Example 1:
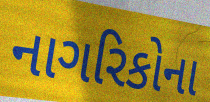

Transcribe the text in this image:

નાગરિકોના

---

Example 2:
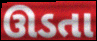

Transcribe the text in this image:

ઊડતા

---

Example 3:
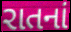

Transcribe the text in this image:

રાતનાં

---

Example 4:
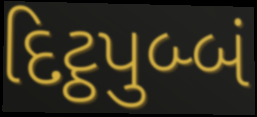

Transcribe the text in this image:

દિટ્ઠપુબ્બં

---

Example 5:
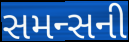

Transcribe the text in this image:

સમન્સની